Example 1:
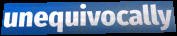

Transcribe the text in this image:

unequivocally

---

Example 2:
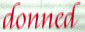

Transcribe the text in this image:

donned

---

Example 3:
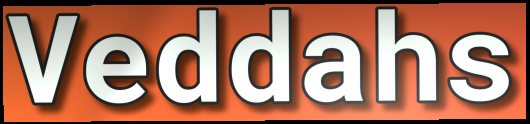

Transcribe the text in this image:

Veddahs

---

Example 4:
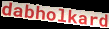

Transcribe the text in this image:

dabholkard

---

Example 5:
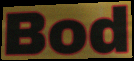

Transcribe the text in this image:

Bod